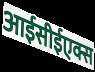
आईसीईएक्स